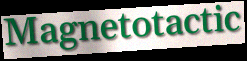
Magnetotactic